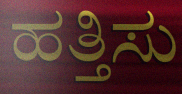
ಹತ್ತಿಸು